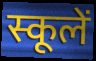
स्कूलें